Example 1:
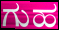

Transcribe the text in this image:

ಗುಹ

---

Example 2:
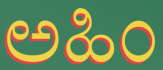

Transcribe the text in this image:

ಅಹಿಂ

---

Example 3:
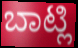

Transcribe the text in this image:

ಬಾಟ್ಲಿ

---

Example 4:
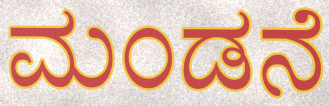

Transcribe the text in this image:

ಮಂಡನೆ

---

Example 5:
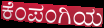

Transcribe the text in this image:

ಕೆಂಪಂಗಿಯ